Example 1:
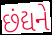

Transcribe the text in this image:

છંદ્યને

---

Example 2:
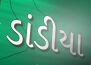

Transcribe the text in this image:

ડાંડીયા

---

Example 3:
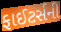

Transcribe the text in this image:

ફાઈટર્સની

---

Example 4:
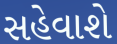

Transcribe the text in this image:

સહેવાશે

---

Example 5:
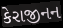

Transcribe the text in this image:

કેરાજીનન